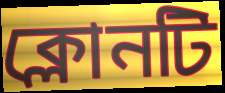
ক্লোনটি